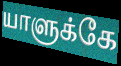
யாளுக்கே